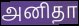
அனிதா